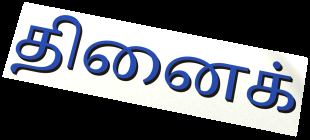
தினைக்